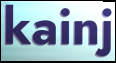
kainj